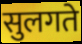
सुलगते